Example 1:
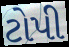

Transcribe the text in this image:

ટોપી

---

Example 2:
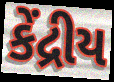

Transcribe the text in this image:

કેંદ્રીય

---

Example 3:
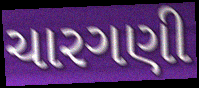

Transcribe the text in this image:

ચારગણી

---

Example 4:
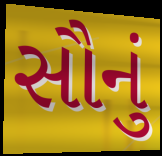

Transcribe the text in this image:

સૌનું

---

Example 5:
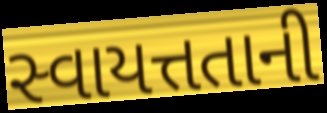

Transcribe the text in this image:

સ્વાયત્તતાની